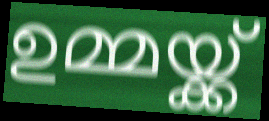
ഉമ്മയ്ക്ക്